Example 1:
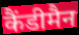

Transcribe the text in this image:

कैंडीमैन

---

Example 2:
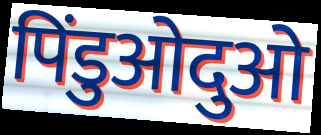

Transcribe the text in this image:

पिंडुओदुओ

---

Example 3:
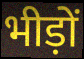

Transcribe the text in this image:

भीड़ों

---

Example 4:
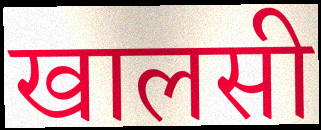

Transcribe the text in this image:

खालसी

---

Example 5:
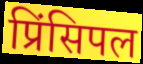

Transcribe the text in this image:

प्रिंसिपल